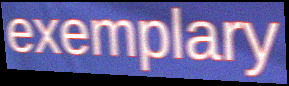
exemplary